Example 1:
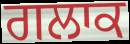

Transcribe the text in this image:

ਗਲਾਕ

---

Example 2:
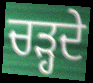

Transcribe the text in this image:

ਚਡ਼੍ਹਦੇ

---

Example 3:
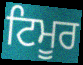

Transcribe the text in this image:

ਟਿਮੂਰ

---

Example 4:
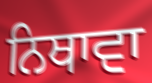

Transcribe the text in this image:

ਨਿਥਾਵਾ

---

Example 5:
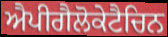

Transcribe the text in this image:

ਐਪੀਗੈਲੋਕੇਟੈਚਿਨ